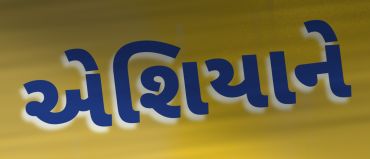
એશિયાને